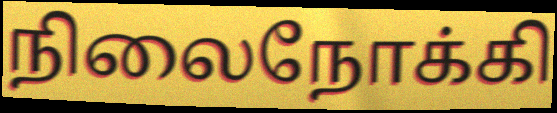
நிலைநோக்கி